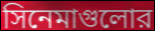
সিনেমাগুলোর